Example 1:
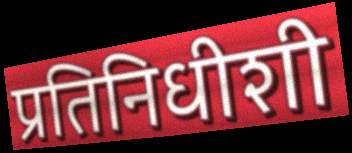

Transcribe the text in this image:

प्रतिनिधीशी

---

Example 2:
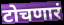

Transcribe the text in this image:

टोचणारं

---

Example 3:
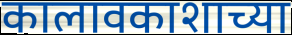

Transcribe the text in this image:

कालावकाशाच्या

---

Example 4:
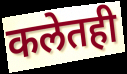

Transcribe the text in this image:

कलेतही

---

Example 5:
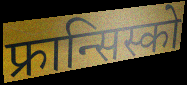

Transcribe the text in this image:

फ्रान्सिस्को